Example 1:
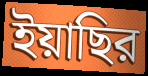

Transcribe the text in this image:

ইয়াছির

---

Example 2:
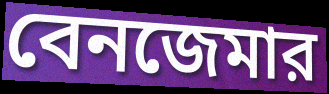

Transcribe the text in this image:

বেনজেমার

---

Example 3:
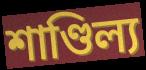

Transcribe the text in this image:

শাণ্ডিল্য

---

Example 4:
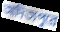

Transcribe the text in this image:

আদিত্যপুরে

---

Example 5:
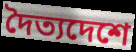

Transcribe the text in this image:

দৈত্যদেশে